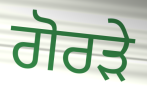
ਗੋਰੜੇ